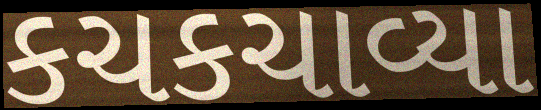
કચકચાવ્યા